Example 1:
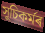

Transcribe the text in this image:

সূচিকৰ্মৰ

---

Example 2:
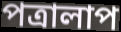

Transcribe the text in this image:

পত্ৰালাপ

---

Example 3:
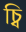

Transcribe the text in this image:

চ্বি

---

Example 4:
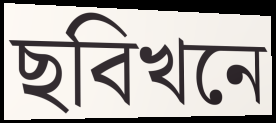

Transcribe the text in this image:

ছবিখনে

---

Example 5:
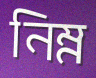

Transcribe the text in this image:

নিম্ন